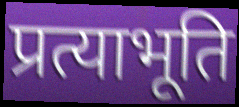
प्रत्याभूति